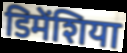
डिमेंशिया